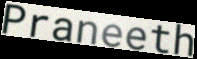
Praneeth